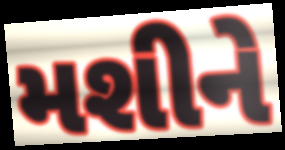
મશીને